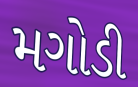
મગોડી